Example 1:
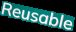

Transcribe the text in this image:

Reusable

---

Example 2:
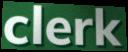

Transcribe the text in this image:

clerk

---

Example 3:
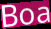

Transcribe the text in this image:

Boa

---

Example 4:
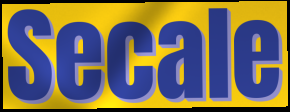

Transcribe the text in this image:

Secale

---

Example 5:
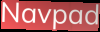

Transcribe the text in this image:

Navpad